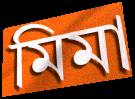
মিমা